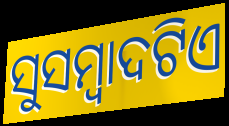
ସୁସମ୍ବାଦଟିଏ